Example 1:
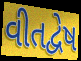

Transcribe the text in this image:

વીતદ્વેષ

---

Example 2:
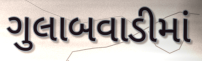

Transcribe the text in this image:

ગુલાબવાડીમાં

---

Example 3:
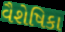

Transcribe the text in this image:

વૈશેષિકા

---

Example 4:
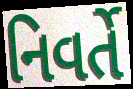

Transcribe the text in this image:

નિવર્તે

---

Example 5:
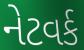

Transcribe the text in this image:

નેટવર્ક